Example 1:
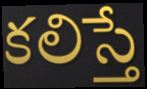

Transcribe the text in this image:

కలిస్తే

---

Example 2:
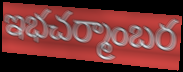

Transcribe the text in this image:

ఇభచర్మాంబర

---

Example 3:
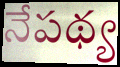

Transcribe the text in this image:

నేపథ్య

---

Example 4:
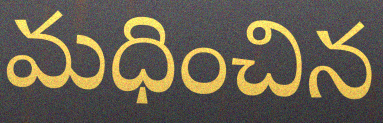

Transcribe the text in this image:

మధించిన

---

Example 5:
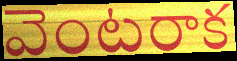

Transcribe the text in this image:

వెంటరాక